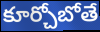
కూర్చోబోతే